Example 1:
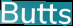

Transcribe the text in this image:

Butts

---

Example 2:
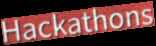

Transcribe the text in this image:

Hackathons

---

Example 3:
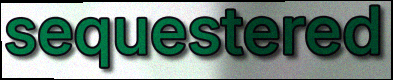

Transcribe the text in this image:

sequestered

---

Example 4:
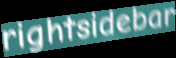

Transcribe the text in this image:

rightsidebar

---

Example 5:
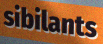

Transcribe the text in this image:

sibilants